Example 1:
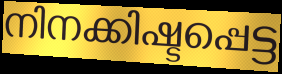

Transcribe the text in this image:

നിനക്കിഷ്ടപ്പെട്ട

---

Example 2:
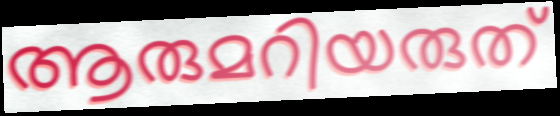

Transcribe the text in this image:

ആരുമറിയരുത്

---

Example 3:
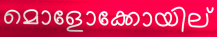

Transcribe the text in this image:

മൊളോക്കോയില്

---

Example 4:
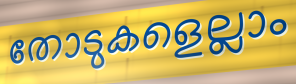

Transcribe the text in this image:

തോടുകളെല്ലാം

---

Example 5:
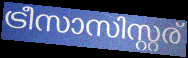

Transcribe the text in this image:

ട്രീസാസിസ്റ്റര്